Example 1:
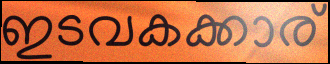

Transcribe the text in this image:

ഇടവകക്കാര്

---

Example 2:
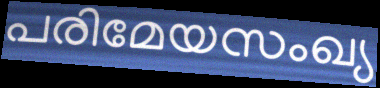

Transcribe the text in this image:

പരിമേയസംഖ്യ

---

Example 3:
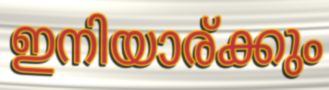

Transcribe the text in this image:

ഇനിയാര്ക്കും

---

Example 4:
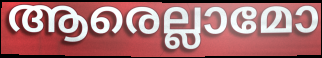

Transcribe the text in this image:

ആരെല്ലാമോ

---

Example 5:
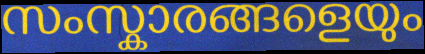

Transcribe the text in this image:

സംസ്കാരങ്ങളെയും